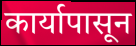
कार्यापासून